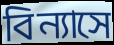
বিন্যাসে